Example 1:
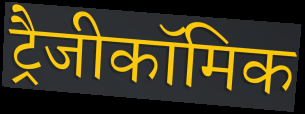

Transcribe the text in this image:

ट्रैजीकॉमिक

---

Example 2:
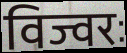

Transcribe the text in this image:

विज्वरः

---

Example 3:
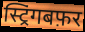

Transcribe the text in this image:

स्ट्रिंगबफ़र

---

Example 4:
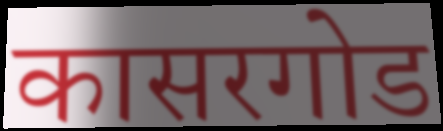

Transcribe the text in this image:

कासरगोड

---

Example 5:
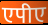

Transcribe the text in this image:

एपीए